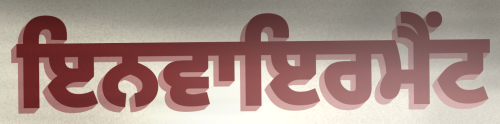
ਇਨਵਾਇਰਮੈਂਟ